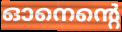
ഓനെന്റെ